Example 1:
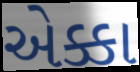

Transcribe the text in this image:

એક્કા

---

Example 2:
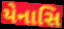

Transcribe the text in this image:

યેનાસિ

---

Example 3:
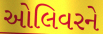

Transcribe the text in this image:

ઓલિવરને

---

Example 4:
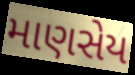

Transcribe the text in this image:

માણસેય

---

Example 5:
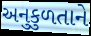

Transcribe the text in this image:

અનુકુળતાને